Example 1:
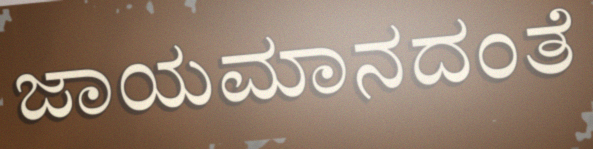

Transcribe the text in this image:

ಜಾಯಮಾನದಂತೆ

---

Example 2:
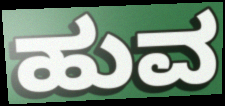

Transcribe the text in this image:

ಹುವ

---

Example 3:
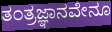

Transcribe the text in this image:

ತಂತ್ರಜ್ಞಾನವೇನೂ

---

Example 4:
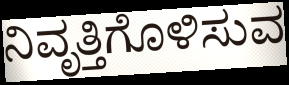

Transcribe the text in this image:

ನಿವೃತ್ತಿಗೊಳಿಸುವ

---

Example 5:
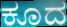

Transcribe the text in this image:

ಕೂದ